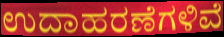
ಉದಾಹರಣೆಗಳಿವೆ